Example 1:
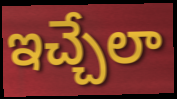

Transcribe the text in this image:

ఇచ్చేలా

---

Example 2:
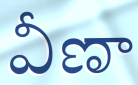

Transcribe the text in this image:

వీణా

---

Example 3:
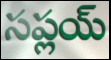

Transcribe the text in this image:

సప్లయ్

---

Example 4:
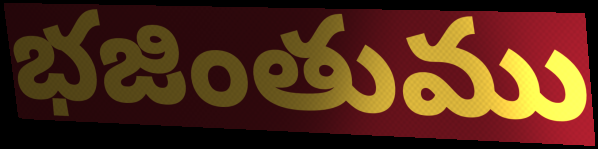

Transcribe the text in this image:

భజింతుము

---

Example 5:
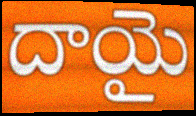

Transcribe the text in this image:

దాయై